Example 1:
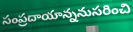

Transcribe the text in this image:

సంప్రదాయాన్ననుసరించి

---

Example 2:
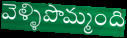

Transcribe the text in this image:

వెళ్ళిపొమ్మంది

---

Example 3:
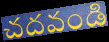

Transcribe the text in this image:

చదవండి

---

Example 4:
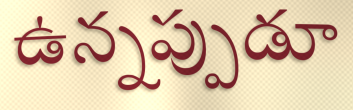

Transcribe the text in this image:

ఉన్నప్పుడూ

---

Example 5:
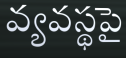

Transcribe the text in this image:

వ్యవస్థపై